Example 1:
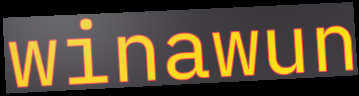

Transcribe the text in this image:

winawun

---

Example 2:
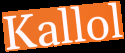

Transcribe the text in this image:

Kallol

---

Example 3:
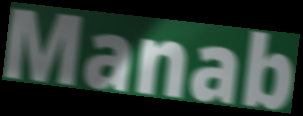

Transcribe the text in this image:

Manab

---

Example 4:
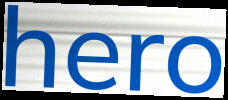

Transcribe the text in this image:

hero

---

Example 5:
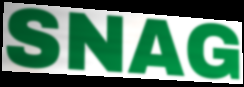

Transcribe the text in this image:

SNAG